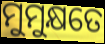
ମୁମୁକ୍ଷତେ